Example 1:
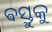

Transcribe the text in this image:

ଵସ୍ତୁକୁ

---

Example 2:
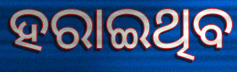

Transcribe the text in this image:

ହରାଇଥିବ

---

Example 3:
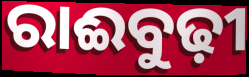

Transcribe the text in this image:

ରାଈବୁଢ଼ୀ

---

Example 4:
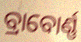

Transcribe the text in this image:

ବ୍ରାବୋର୍ଣ୍ଣ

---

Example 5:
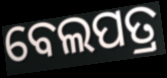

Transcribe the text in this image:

ବେଲପତ୍ର